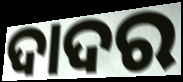
ଦାଦର